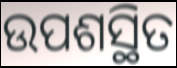
ଉପଶସ୍ଥିତ